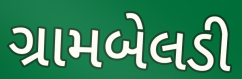
ગ્રામબેલડી